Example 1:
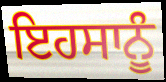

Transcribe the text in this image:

ਇਹਸਾਨੂੰ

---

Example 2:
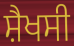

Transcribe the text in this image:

ਸ਼ੈਖਸੀ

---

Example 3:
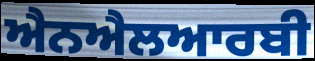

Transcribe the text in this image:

ਐਨਐਲਆਰਬੀ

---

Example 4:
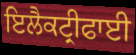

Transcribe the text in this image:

ਇਲੈਕਟ੍ਰੀਫਾਈ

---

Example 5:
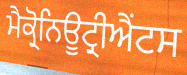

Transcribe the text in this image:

ਮੈਕ੍ਰੋਨਿਊਟ੍ਰੀਐਂਟਸ